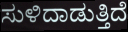
ಸುಳಿದಾಡುತ್ತಿದೆ